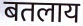
बतलाय